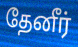
தேனீர்